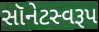
સૉનેટસ્વરૂપ